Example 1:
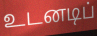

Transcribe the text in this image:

உடனடிப்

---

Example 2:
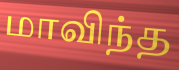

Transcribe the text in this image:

மாவிந்த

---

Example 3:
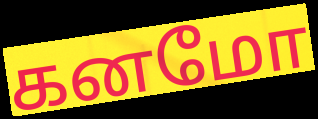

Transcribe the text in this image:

கனமோ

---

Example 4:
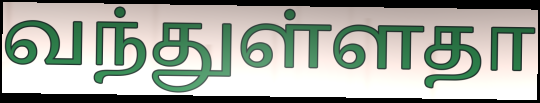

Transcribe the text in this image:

வந்துள்ளதா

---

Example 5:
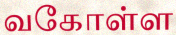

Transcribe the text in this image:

வகோள்ள